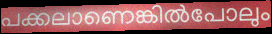
പക്കലാണെങ്കിൽപോലും